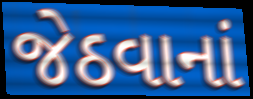
જેઠવાનાં